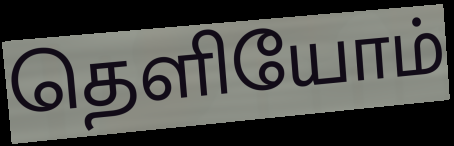
தெளியோம்